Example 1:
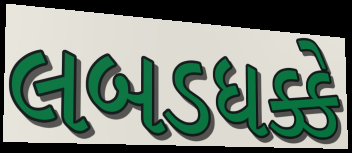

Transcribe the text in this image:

લબડધક્કે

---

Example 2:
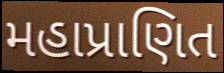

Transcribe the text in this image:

મહાપ્રાણિત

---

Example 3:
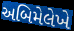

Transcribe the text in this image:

અબિમેલેખે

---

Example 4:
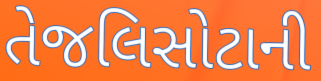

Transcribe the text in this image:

તેજલિસોટાની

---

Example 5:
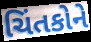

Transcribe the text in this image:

ચિંતકોને